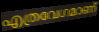
എത്രവേഗമാണ്